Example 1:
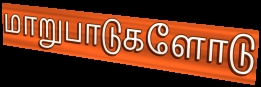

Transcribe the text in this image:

மாறுபாடுகளோடு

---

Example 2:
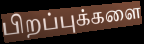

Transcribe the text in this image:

பிறப்புக்களை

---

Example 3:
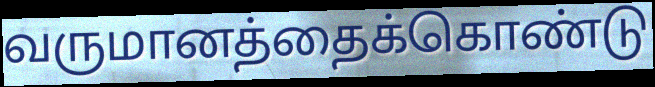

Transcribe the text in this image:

வருமானத்தைக்கொண்டு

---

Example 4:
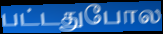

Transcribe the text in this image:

பட்டதுபோல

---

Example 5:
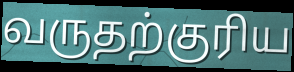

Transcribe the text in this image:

வருதற்குரிய